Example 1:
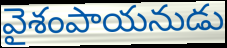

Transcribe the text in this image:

వైశంపాయనుడు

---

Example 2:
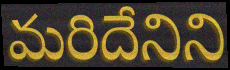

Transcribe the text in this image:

మరిదేనిని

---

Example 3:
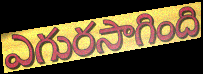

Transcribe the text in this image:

ఎగురసాగింది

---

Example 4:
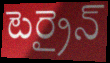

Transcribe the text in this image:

టెర్రైన్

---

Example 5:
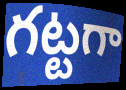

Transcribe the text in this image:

గట్టగా